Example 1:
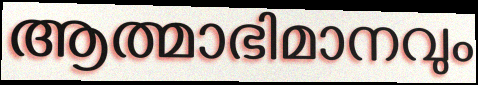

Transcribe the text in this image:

ആത്മാഭിമാനവും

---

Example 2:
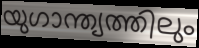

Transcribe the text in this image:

യുഗാന്ത്യത്തിലും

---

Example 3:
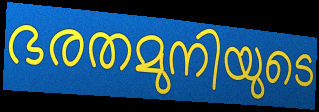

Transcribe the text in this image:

ഭരതമുനിയുടെ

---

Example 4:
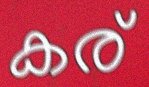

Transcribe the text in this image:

കര്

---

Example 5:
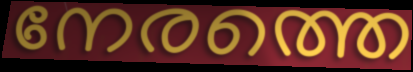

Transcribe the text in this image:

നേരത്തെ